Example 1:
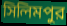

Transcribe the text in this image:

সিলিমপুর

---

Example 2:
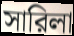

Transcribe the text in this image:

সারিলা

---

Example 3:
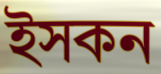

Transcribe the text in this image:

ইসকন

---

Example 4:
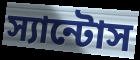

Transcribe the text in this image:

স্যান্টোস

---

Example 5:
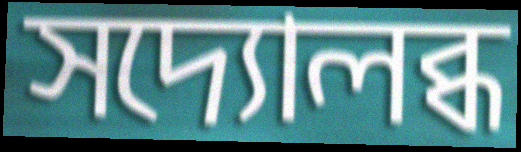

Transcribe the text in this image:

সদ্যোলব্ধ